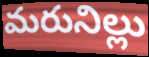
మరునిల్లు